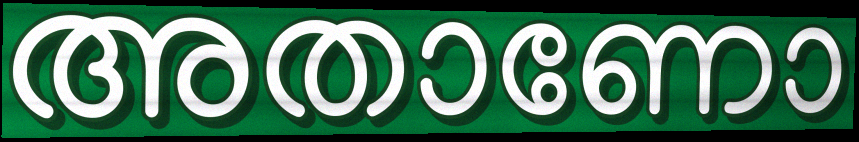
അതാണോ